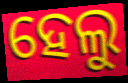
ହେଲୁ